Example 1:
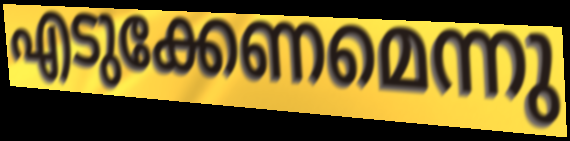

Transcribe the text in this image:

എടുക്കേണമെന്നു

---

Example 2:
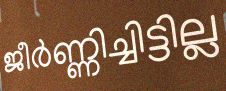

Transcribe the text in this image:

ജീർണ്ണിച്ചിട്ടില്ല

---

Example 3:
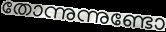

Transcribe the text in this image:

തോന്നുന്നുണ്ടോ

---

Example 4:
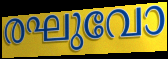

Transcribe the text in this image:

രഘുവോ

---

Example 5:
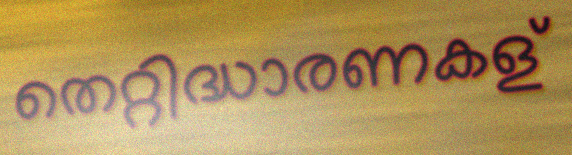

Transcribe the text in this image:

തെറ്റിദ്ധാരണകള്